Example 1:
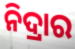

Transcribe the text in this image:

ନିଦ୍ରାର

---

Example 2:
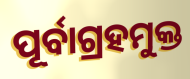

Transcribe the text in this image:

ପୂର୍ବାଗ୍ରହମୁକ୍ତ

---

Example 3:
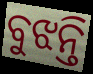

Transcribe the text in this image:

ବୁଝନ୍ତି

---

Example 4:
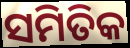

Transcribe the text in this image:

ସମିତିକ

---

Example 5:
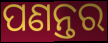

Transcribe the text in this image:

ପଣନ୍ତର